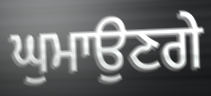
ਘੁਮਾਉਣਗੇ